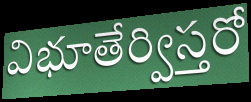
విభూతేర్విస్తరో